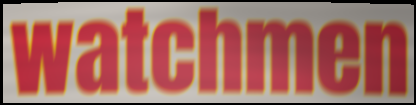
watchmen